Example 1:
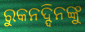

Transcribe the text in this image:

ରୁକନଦ୍ଦିନଙ୍କୁ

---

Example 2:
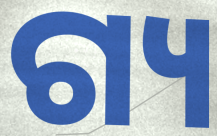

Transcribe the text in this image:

ଗ୍ୟ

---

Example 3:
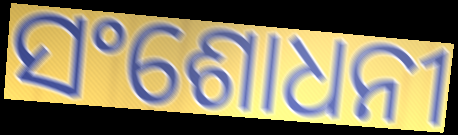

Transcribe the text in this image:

ସଂଶୋଧନୀ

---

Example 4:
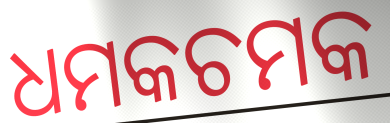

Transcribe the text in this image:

ଧମକଚମକ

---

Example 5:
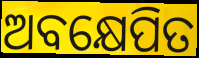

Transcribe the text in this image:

ଅବକ୍ଷେପିତ